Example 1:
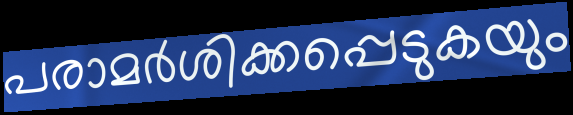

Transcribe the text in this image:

പരാമർശിക്കപ്പെടുകയും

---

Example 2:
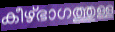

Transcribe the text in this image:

കീഴ്ഭാഗത്തുള്ള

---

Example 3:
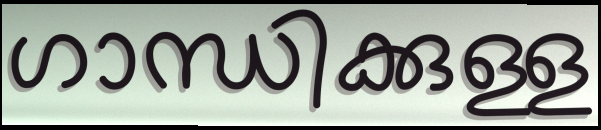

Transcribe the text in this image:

ഗാന്ധിക്കുള്ള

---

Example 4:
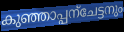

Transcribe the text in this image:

കുഞ്ഞാപ്പന്ചേട്ടനും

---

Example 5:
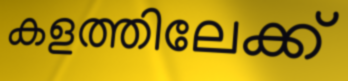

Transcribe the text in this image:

കളത്തിലേക്ക്